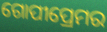
ଗୋପୀପ୍ରେମର